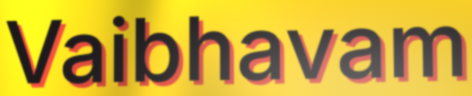
Vaibhavam